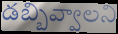
డబ్బివ్వాలని